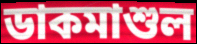
ডাকমাশুল